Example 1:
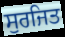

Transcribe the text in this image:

ਸੁਰਜਿਤ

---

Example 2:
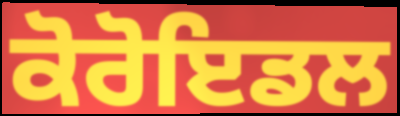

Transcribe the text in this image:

ਕੋਰੋਇਡਲ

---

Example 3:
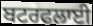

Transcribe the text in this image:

ਬਟਰਫਲਾਈ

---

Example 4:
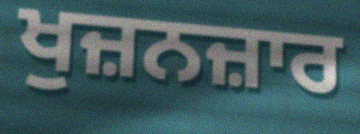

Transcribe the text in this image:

ਖੁਜ਼ਨਜ਼ਾਰ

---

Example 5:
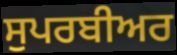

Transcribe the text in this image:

ਸੁਪਰਬੀਅਰ